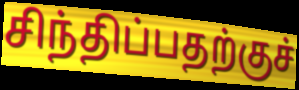
சிந்திப்பதற்குச்